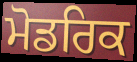
ਮੋਡਰਿਕ